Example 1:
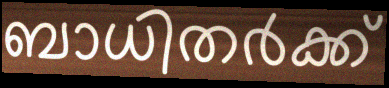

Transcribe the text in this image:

ബാധിതർക്ക്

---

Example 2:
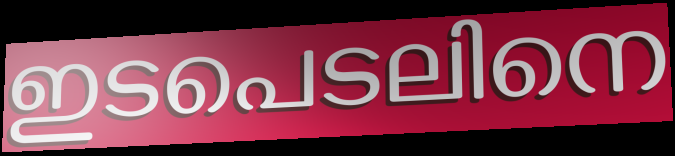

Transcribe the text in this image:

ഇടപെടലിനെ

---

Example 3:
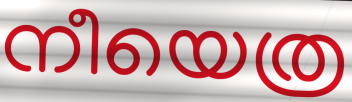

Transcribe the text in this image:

നീയെത്ര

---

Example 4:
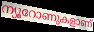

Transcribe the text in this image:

ന്യൂറോണുകളാണ്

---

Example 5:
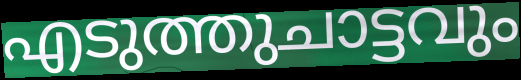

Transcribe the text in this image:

എടുത്തുചാട്ടവും